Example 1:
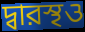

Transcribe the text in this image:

দ্বারস্থও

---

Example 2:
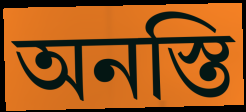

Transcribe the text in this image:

অনস্তি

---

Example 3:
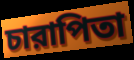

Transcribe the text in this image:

চারাপিতা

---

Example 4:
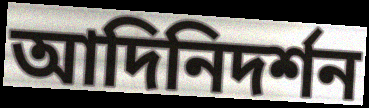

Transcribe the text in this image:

আদিনিদর্শন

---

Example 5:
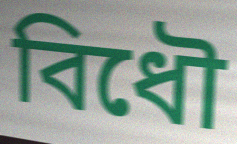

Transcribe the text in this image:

বিধৌ